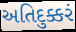
અતિદુક્કરં